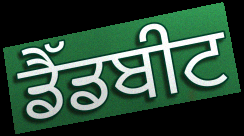
ਡੈੱਡਬੀਟ